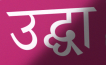
उद्घा